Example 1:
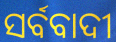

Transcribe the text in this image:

ସର୍ବବାଦୀ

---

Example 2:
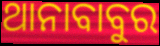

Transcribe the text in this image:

ଥାନାବାବୁର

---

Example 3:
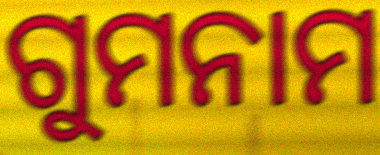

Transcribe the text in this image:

ଗୁମନାମ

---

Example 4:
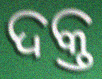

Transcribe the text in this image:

ଦକ୍ତ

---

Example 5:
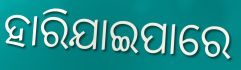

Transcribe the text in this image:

ହାରିଯାଇପାରେ